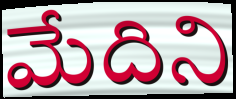
మేదిని